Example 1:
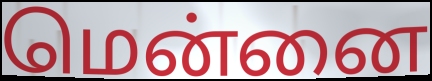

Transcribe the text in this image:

மென்னை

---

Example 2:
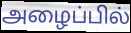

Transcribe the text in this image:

அழைப்பில்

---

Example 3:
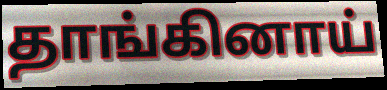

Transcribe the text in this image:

தாங்கினாய்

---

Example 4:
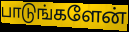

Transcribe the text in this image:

பாடுங்களேன்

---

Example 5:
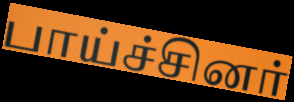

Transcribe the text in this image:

பாய்ச்சினர்